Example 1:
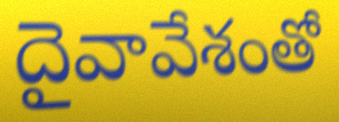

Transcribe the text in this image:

దైవావేశంతో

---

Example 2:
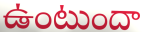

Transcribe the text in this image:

ఉంటుందా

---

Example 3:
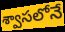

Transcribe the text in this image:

శ్వాసలోనే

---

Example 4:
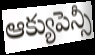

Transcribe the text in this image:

ఆక్యుపెన్సీ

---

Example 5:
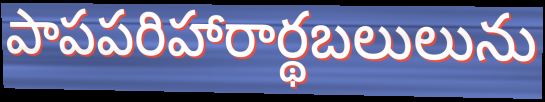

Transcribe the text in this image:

పాపపరిహారార్థబలులును